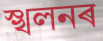
স্খলনৰ